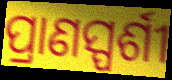
ପ୍ରାଣସ୍ପର୍ଶୀ